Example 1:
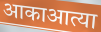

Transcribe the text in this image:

आकाआत्या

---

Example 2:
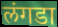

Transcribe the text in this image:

लंगडा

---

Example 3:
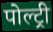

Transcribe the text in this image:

पोल्ट्री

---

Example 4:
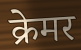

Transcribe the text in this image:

क्रेमर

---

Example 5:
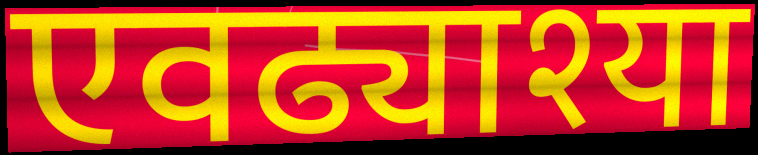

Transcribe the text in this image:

एवढ्याश्या